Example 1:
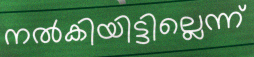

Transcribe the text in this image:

നൽകിയിട്ടില്ലെന്ന്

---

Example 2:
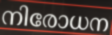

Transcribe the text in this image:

നിരോധന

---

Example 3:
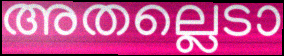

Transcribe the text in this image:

അതല്ലെടാ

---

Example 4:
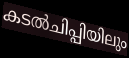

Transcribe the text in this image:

കടൽചിപ്പിയിലും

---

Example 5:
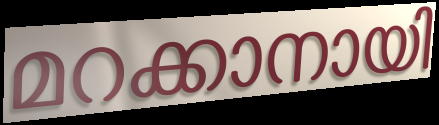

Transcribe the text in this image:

മറക്കാനായി